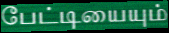
பேட்டியையும்